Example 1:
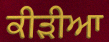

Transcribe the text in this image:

ਕੀੜੀਆ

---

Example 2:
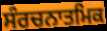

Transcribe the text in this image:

ਸੰਰਚਨਾਤਮਿਕ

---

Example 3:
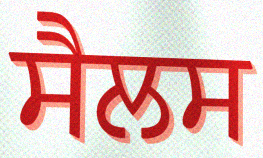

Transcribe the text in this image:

ਸੈਲਸ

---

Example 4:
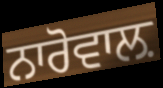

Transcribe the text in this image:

ਨਾਰੋਵਾਲ਼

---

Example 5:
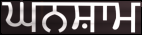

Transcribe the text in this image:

ਘਨਸ਼ਾਮ